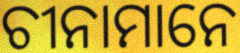
ଚୀନାମାନେ